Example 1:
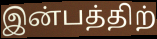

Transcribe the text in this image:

இன்பத்திற்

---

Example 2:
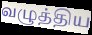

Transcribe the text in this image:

வழுத்திய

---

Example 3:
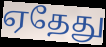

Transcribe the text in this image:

ஏதேது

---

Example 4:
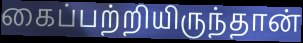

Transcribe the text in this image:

கைப்பற்றியிருந்தான்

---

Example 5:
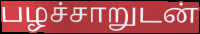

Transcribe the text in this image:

பழச்சாறுடன்